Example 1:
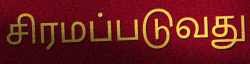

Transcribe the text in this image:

சிரமப்படுவது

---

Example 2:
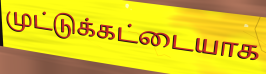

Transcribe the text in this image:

முட்டுக்கட்டையாக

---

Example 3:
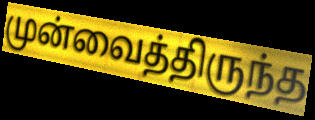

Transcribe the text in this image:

முன்வைத்திருந்த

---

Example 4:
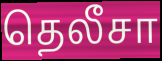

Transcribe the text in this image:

தெலீசா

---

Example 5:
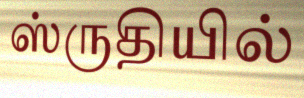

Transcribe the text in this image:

ஸ்ருதியில்